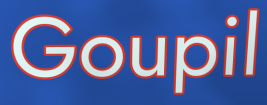
Goupil